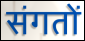
संगतों